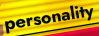
personality